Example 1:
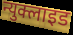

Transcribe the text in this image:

न्युक्लाइड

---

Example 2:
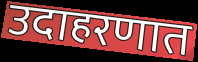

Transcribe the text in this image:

उदाहरणात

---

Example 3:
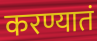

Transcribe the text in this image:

करण्यातं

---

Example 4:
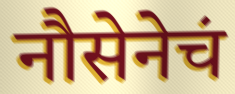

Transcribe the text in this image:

नौसेनेचं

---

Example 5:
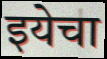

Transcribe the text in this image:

इयेचा